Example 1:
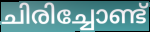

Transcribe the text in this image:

ചിരിച്ചോണ്ട്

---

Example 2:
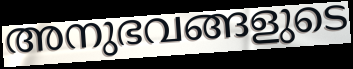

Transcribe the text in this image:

അനുഭവങ്ങളുടെ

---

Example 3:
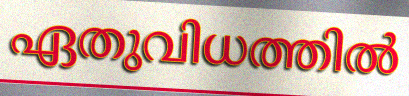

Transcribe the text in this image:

ഏതുവിധത്തിൽ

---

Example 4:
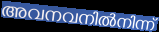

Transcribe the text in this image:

അവനവനിൽനിന്ന്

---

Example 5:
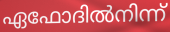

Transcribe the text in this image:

ഏഫോദിൽനിന്ന്